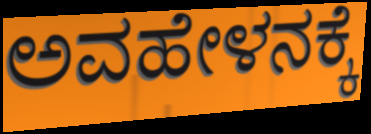
ಅವಹೇಳನಕ್ಕೆ